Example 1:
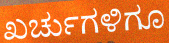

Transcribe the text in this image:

ಖರ್ಚುಗಳಿಗೂ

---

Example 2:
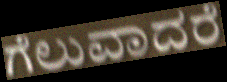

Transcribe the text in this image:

ಗೆಲುವಾದರೆ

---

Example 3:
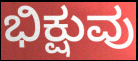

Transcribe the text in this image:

ಭಿಕ್ಷುವು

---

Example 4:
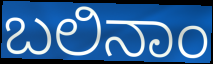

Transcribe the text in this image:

ಬಲಿನಾಂ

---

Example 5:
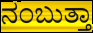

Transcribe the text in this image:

ನಂಬುತ್ತಾ